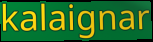
kalaignar